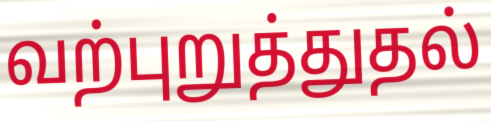
வற்புறுத்துதல்